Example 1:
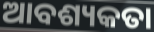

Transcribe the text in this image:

ଆବଶ୍ୟକତା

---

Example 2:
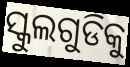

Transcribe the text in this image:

ସ୍କୁଲଗୁଡିକୁ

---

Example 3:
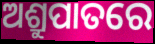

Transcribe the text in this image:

ଅଶ୍ରୁପାତରେ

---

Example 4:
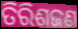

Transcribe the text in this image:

ତିରିଶଜଣ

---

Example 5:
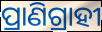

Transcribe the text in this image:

ପ୍ରାଣିଗ୍ରାହୀ